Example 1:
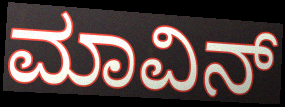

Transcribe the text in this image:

ಮಾವಿನ್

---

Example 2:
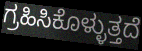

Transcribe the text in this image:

ಗ್ರಹಿಸಿಕೊಳ್ಳುತ್ತದೆ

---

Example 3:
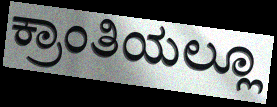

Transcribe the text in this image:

ಕ್ರಾಂತಿಯಲ್ಲೂ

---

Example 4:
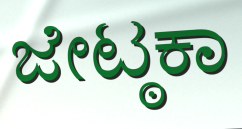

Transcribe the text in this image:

ಜೇಟ್ಠಕಾ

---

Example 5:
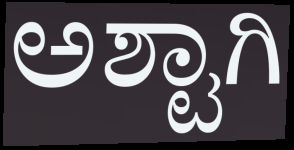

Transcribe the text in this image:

ಅಶ್ಟಾಗಿ